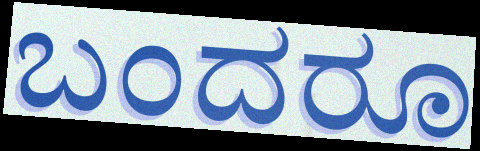
ಬಂದರೂ